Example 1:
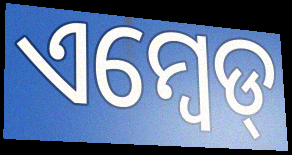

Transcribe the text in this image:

ଏମ୍ବେଡ୍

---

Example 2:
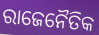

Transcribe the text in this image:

ରାଜେନୈତିକ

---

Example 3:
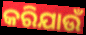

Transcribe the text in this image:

କରିଯାଉଁ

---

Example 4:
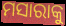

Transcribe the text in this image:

ମସାରାକୁ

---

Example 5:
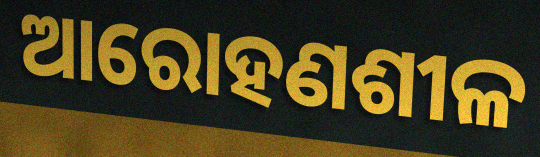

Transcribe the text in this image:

ଆରୋହଣଶୀଳ